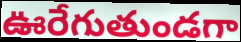
ఊరేగుతుండగా